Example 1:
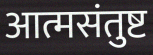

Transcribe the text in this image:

आत्मसंतुष्ट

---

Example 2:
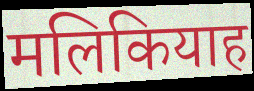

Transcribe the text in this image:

मलिकियाह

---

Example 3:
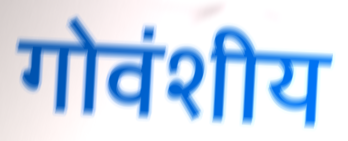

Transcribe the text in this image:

गोवंशीय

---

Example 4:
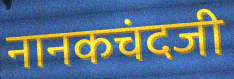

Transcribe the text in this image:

नानकचंदजी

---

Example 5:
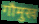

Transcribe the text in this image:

गौमुख